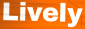
Lively